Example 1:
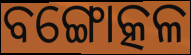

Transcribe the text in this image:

ବଙ୍ଗୋତ୍କଳ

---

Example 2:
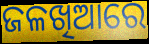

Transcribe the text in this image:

ଜଳଖିଆରେ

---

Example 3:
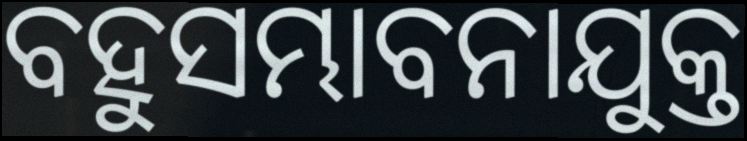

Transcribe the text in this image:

ବହୁସମ୍ଭାବନାଯୁକ୍ତ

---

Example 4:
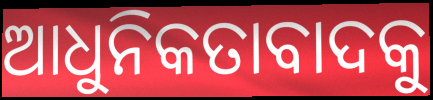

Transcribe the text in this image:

ଆଧୁନିକତାବାଦକୁ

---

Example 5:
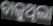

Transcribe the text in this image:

ବାଜୁଥିଲା